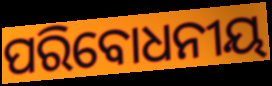
ପରିବୋଧନୀୟ